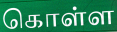
கொள்ள